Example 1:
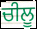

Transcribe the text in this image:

ਚੀਲੂ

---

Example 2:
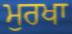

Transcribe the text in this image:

ਮੁਰਖਾ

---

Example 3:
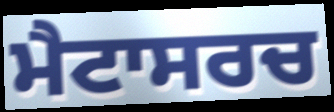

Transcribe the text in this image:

ਮੈਟਾਸਰਚ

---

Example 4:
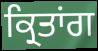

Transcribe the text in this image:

ਕ੍ਰਿਤਾਂਗ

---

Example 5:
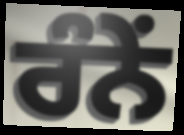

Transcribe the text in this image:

ਰੰਨੇਂ